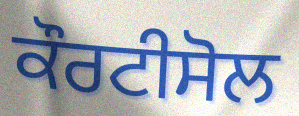
ਕੌਰਟੀਸੋਲ